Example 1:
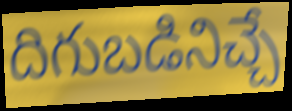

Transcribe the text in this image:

దిగుబడినిచ్చే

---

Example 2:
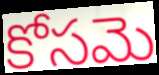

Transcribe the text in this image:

కోసమె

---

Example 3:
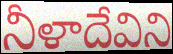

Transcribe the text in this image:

నీళాదేవిని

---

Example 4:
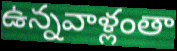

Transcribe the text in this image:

ఉన్నవాళ్లంతా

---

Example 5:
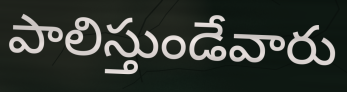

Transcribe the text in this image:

పాలిస్తుండేవారు